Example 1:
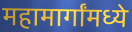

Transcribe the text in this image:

महामार्गांमध्ये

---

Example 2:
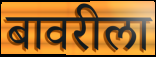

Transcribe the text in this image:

बावरीला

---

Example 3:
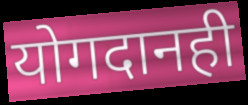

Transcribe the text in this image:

योगदानही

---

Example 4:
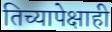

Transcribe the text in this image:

तिच्यापेक्षाही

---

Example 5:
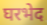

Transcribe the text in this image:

घरभेद